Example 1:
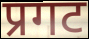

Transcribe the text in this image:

प्रगट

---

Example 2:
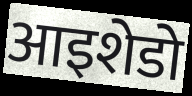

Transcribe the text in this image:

आइशेडो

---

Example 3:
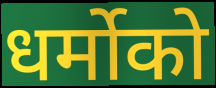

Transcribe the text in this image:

धर्मोको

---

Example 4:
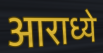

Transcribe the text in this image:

आराध्ये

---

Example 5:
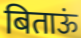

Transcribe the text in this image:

बिताऊं